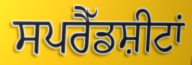
ਸਪਰੈੱਡਸ਼ੀਟਾਂ